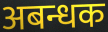
अबन्धक